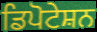
ਡਿਪੋਟੇਸ਼ਨ